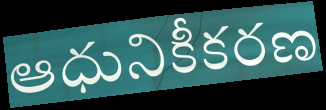
ఆధునికీకరణ